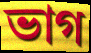
ভাগ